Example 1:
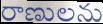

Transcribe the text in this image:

రాణులను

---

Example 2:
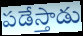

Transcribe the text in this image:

పడేస్తాడు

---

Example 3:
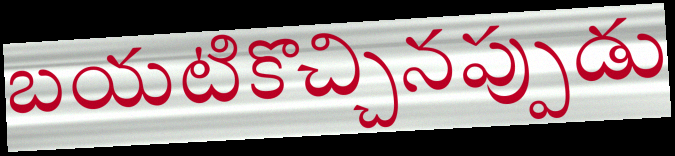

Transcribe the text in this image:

బయటికొచ్చినప్పుడు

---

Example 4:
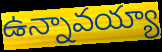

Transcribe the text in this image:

ఉన్నావయ్యా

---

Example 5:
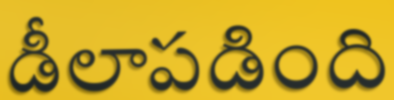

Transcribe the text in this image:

డీలాపడింది